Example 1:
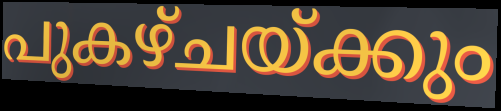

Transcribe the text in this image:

പുകഴ്ചയ്ക്കും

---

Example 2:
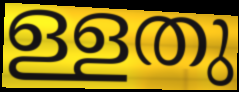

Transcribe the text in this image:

ള്ളതു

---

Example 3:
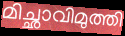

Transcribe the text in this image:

മിച്ഛാവിമുത്തി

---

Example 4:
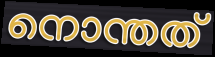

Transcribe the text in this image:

നൊന്തത്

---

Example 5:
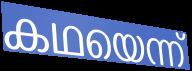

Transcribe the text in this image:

കഥയെന്ന്